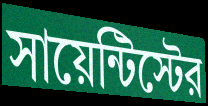
সায়েন্টিস্টের